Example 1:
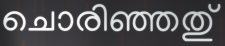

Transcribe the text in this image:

ചൊരിഞ്ഞതു്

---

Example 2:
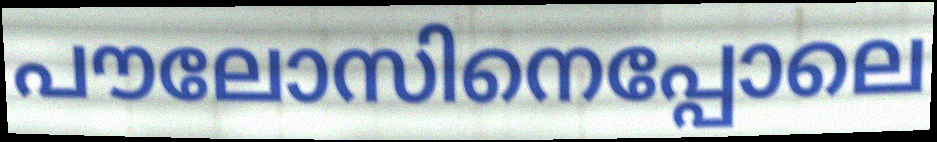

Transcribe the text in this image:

പൗലോസിനെപ്പോലെ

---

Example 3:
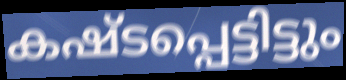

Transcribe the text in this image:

കഷ്ടപ്പെട്ടിട്ടും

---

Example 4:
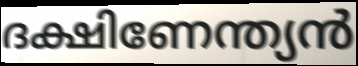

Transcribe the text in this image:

ദക്ഷിണേന്ത്യൻ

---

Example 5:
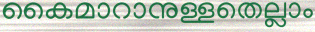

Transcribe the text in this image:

കൈമാറാനുള്ളതെല്ലാം